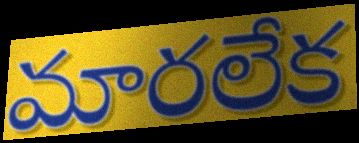
మారలేక